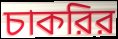
চাকরির